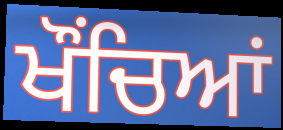
ਖੌਂਚਿਆਂ